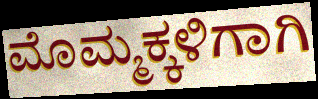
ಮೊಮ್ಮಕ್ಕಳಿಗಾಗಿ